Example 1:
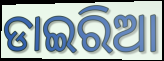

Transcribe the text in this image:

ଡାଇରିଆ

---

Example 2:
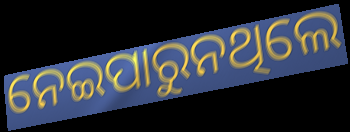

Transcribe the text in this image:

ନେଇପାରୁନଥିଲେ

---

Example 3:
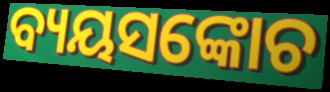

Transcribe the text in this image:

ବ୍ୟୟସଙ୍କୋଚ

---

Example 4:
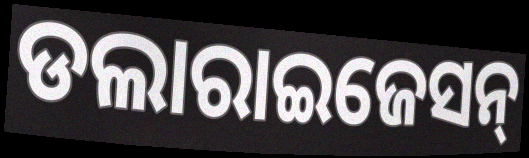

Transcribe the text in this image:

ଡଲାରାଇଜେସନ୍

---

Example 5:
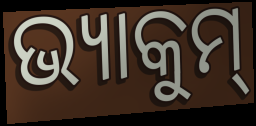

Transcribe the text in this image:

ଭ୍ୟାକୁମ୍